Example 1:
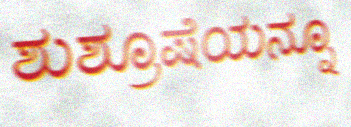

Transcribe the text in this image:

ಶುಶ್ರೂಷೆಯನ್ನೂ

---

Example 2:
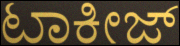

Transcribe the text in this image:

ಟಾಕೀಜ್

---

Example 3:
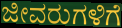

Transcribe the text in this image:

ಜೀವರುಗಳಿಗೆ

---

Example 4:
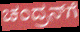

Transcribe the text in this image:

ಚಂದ್ರನ್‌ಗೆ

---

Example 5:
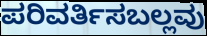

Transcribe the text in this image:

ಪರಿವರ್ತಿಸಬಲ್ಲವು